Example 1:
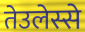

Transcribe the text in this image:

तेउलेस्से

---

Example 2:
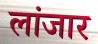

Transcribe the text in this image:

लांजार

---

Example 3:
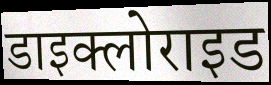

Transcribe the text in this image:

डाइक्लोराइड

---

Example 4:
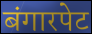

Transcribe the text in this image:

बंगारपेट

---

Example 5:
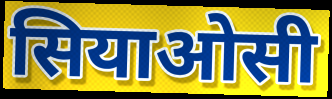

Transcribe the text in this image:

सियाओसी